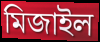
মিজাইল